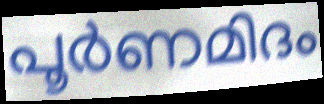
പൂർണമിദം